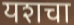
यशचा